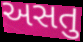
અસતુ